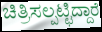
ಚಿತ್ರಿಸಲ್ಪಟ್ಟಿದ್ದಾರೆ